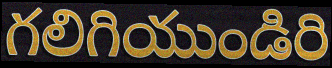
గలిగియుండిరి